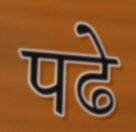
पढे